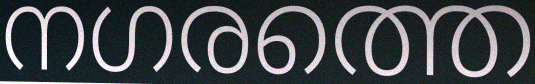
നഗരത്തെ